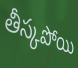
తీస్కపోయి